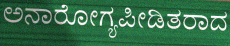
ಅನಾರೋಗ್ಯಪೀಡಿತರಾದ